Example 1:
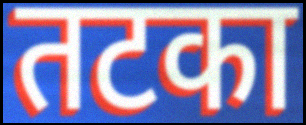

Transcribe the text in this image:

तटका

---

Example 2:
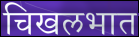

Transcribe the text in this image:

चिखलभात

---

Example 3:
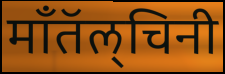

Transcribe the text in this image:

माँतॅल्चिनी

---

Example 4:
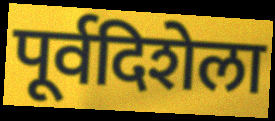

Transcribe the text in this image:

पूर्वदिशेला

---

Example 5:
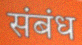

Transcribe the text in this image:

संबंध